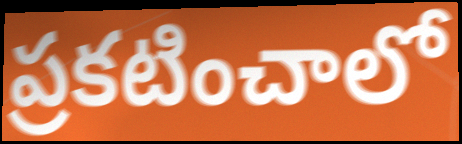
ప్రకటించాలో